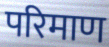
परिमाण